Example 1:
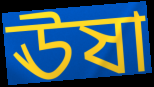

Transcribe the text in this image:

ঊষা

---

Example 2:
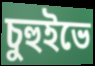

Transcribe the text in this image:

চুহুইভে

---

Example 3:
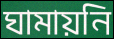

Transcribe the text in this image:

ঘামায়নি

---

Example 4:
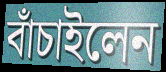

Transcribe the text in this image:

বাঁচাইলেন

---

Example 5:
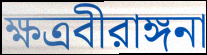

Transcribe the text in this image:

ক্ষত্রবীরাঙ্গনা